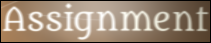
Assignment